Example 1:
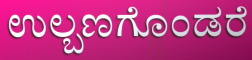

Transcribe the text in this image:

ಉಲ್ಬಣಗೊಂಡರೆ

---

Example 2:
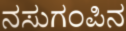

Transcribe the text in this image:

ನಸುಗಂಪಿನ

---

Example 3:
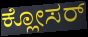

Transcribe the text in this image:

ಕ್ಲೋಸರ್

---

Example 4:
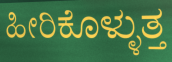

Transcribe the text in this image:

ಹೀರಿಕೊಳ್ಳುತ್ತ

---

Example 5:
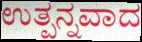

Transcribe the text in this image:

ಉತ್ಪನ್ನವಾದ